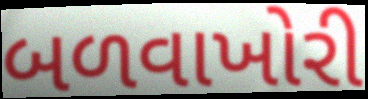
બળવાખોરી